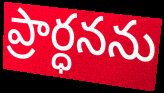
ప్రార్ధనను